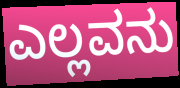
ಎಲ್ಲವನು